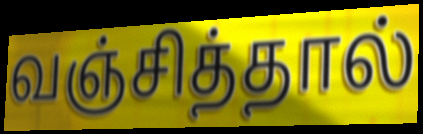
வஞ்சித்தால்